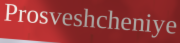
Prosveshcheniye